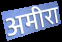
अमीरा